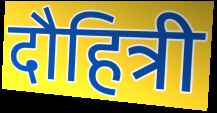
दौहित्री